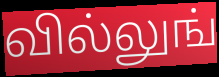
வில்லுங்